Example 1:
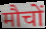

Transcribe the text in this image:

मौचों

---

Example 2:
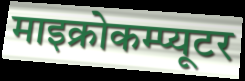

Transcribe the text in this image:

माइक्रोकम्प्यूटर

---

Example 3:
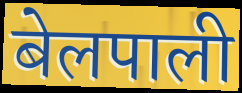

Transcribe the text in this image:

बेलपाली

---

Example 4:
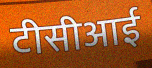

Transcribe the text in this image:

टीसीआई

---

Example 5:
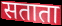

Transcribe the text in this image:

सताता